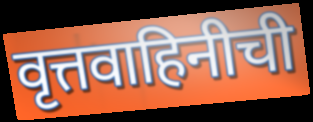
वृत्तवाहिनीची